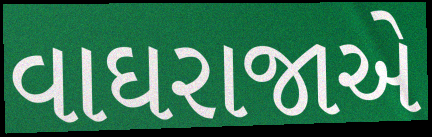
વાઘરાજાએ